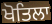
ਖੋਤਿਲਾ